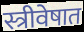
स्त्रीवेषात